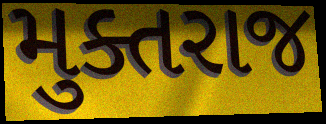
મુક્તરાજ